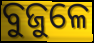
ବୁଜୁଳେ